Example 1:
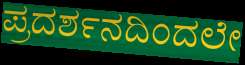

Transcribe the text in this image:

ಪ್ರದರ್ಶನದಿಂದಲೇ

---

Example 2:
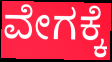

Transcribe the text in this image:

ವೇಗಕ್ಕೆ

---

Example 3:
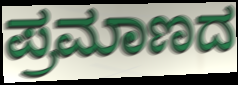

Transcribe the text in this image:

ಪ್ರಮಾಣದ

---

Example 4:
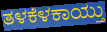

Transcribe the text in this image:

ತಳಕೆಳಕಾಯ್ತು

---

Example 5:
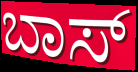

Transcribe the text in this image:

ಬಾಸ್